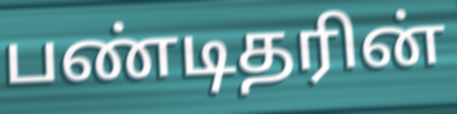
பண்டிதரின்